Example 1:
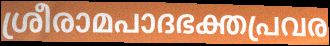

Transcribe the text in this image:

ശ്രീരാമപാദഭക്തപ്രവര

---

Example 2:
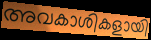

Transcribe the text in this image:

അവകാശികളായി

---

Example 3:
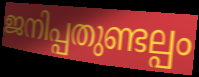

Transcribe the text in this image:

ജനിപ്പതുണ്ടല്പം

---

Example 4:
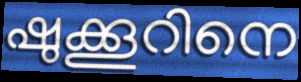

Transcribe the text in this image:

ഷുക്കൂറിനെ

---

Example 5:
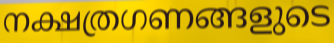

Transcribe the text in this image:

നക്ഷത്രഗണങ്ങളുടെ